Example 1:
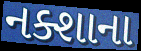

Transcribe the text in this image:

નક્શાના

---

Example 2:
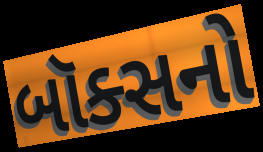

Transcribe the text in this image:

બૉક્સનો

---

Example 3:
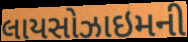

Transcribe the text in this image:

લાયસોઝાઇમની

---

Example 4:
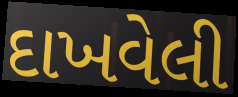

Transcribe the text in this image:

દાખવેલી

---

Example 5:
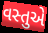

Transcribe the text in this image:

વસ્તુએ